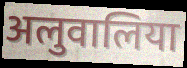
अलुवालिया